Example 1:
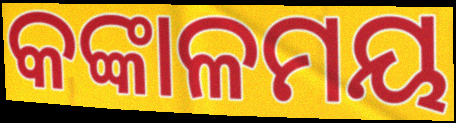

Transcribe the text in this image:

କଙ୍କାଳମୟ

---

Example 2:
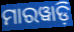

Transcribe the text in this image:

ମାରୱାଡ଼ି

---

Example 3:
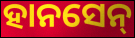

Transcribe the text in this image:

ହାନସେନ୍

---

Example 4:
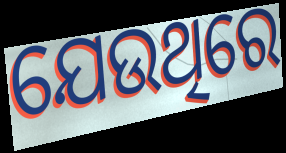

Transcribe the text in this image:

ଯେଉଥିରେ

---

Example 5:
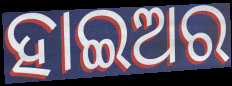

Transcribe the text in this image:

ହାଇଅର